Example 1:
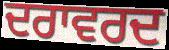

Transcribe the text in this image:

ਦਰਾਵਰਦ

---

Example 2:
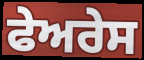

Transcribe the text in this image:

ਫੇਅਰੇਸ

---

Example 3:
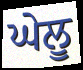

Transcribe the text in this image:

ਘੇਲੂ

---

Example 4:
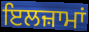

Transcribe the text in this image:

ਇਲਜ਼ਾਮਾਂ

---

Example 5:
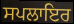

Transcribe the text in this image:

ਸਪਲਾਇਰ